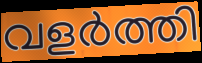
വളർത്തി